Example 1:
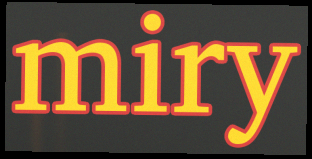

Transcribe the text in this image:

miry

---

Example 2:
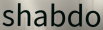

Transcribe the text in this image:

shabdo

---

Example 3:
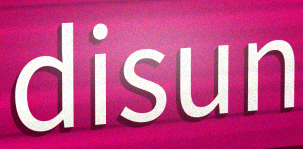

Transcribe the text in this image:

disun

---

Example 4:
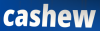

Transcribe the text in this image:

cashew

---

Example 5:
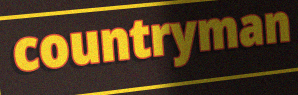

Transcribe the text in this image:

countryman